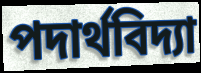
পদার্থবিদ্যা